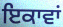
ਇਕਾਵਾਂ